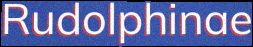
Rudolphinae